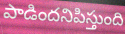
పాడిందనిపిస్తుంది